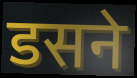
डसने